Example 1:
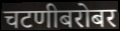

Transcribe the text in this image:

चटणीबरोबर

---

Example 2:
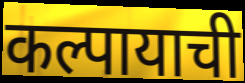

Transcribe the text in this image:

कल्पायाची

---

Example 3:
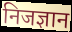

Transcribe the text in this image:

निजज्ञान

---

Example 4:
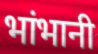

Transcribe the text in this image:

भांभानी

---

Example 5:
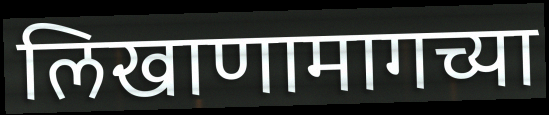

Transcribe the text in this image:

लिखाणामागच्या